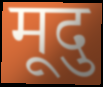
मूदु